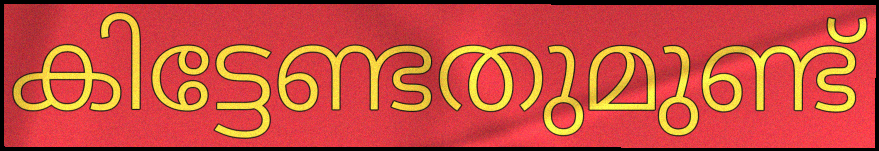
കിട്ടേണ്ടതുമുണ്ട്